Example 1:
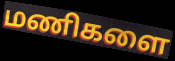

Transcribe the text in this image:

மணிகளை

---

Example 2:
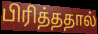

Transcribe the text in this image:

பிரித்ததால்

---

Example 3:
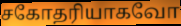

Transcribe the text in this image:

சகோதரியாகவோ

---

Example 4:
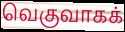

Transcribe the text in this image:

வெகுவாகக்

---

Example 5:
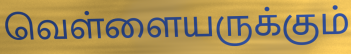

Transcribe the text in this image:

வெள்ளையருக்கும்